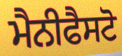
ਮੈਨੀਫੈਸਟੋ